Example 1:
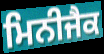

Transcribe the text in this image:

ਮਿਨੀਜੈਕ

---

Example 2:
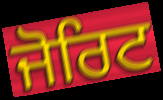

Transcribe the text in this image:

ਜੋਰਿਟ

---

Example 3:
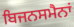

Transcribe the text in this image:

ਬਿਜਨਸਮੈਨਾਂ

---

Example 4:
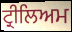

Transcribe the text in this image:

ਟ੍ਰੀਲਿਅਮ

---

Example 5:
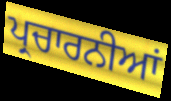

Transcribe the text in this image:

ਪ੍ਰਚਾਰਨੀਆਂ